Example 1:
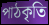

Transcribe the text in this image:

পাঠকৃতি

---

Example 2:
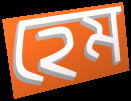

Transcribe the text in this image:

হেম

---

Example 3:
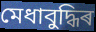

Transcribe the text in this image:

মেধাবুদ্ধিৰ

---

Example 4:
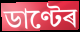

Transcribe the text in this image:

ডাণ্টেৰ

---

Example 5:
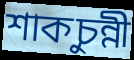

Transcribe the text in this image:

শাকচুন্নী